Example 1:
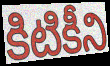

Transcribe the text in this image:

కిటికీని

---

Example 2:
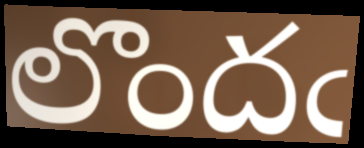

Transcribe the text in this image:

లొందఁ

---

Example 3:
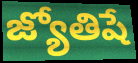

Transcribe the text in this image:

జ్యోతిషే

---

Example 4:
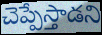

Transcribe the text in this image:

చెప్పేస్తాడని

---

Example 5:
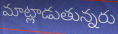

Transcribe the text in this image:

మాట్లాడుతున్నరు